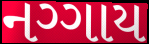
નગ્ગાય